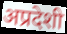
अप्रदेशी